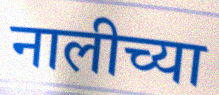
नालीच्या